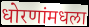
धोरणांमधला